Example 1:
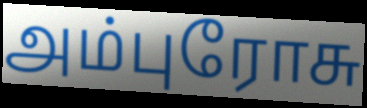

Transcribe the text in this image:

அம்புரோசு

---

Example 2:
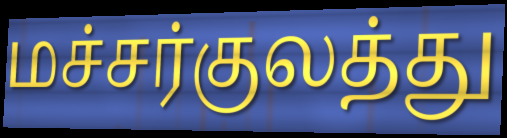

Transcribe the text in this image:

மச்சர்குலத்து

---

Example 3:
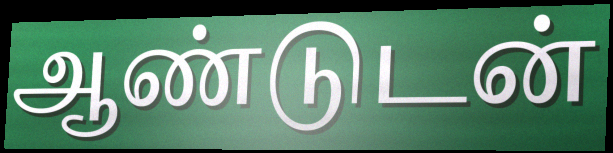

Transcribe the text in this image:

ஆண்டுடன்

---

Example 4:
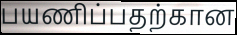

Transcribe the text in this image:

பயணிப்பதற்கான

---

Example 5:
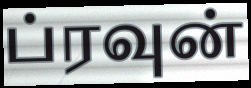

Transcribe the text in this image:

ப்ரவுன்